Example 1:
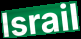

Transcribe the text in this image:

Israil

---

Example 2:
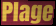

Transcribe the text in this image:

Plage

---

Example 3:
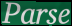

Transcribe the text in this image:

Parse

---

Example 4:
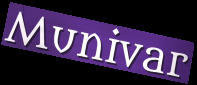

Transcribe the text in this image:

Munivar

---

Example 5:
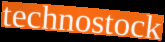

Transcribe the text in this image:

technostock